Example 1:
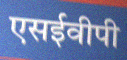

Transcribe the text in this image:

एसईवीपी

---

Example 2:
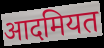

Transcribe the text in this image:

आदमियत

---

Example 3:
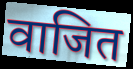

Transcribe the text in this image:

वाजित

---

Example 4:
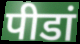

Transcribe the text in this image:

पीडां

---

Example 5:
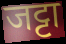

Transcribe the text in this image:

जट्टा